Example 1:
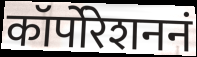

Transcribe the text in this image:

कॉर्पोरेशननं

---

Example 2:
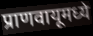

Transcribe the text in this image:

प्राणवायूमध्ये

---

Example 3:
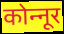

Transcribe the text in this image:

कोन्नूर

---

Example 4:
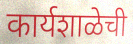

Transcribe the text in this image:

कार्यशाळेची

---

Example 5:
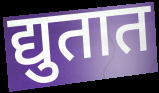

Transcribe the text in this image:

द्युतात